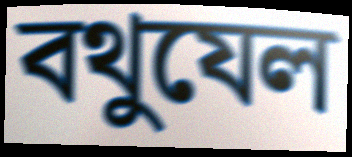
বথুযেল